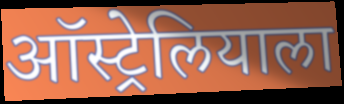
ऑस्ट्रेलियाला